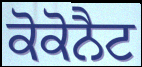
ਕੋਕੋਨੈਟ